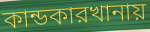
কান্ডকারখানায়